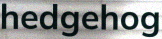
hedgehog